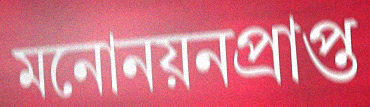
মনোনয়নপ্রাপ্ত